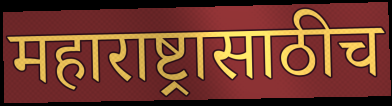
महाराष्ट्रासाठीच